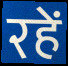
रहें